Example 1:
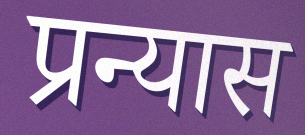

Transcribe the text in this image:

प्रन्यास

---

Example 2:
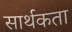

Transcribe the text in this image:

सार्थकता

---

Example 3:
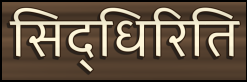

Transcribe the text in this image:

सिद्धिरिति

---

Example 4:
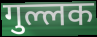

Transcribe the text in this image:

गुल्लक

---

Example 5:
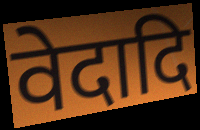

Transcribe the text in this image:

वेदादि